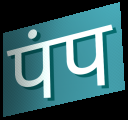
पंप